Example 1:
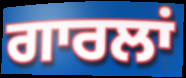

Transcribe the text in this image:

ਗਾਰਲਾਂ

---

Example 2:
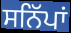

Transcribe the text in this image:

ਸਨਿੱਪਾਂ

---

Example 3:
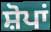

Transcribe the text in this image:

ਸ਼ੋਪਾਂ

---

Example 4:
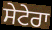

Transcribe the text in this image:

ਸੇਟੇਰਾ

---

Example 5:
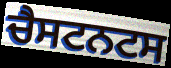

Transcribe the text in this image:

ਚੈਸਟਨਟਸ